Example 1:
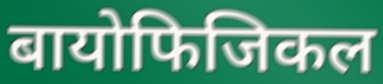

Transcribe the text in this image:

बायोफिजिकल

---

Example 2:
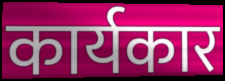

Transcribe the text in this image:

कार्यकार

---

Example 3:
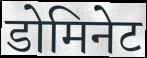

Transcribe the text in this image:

डोमिनेट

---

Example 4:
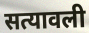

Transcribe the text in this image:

सत्यावली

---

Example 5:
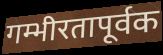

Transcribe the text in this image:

गम्भीरतापूर्वक